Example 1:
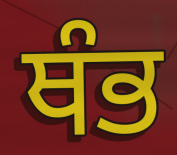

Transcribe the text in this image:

ਥੰਭ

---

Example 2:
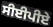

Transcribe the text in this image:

ਸੀਈਪੀਏ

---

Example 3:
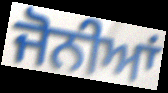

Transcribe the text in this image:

ਜੋਨੀਆਂ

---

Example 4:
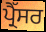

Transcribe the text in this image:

ਪ੍ਰੈੱਸਰ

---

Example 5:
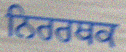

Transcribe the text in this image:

ਨਿਰਰਥਕ